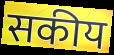
सकीय